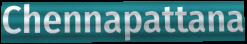
Chennapattana